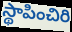
స్థాపించిరి